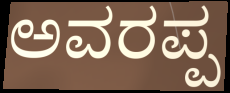
ಅವರಪ್ಪ